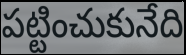
పట్టించుకునేది